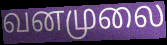
வனமுலை